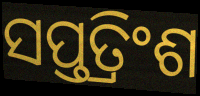
ସପ୍ତତ୍ରିଂଶ